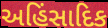
અહિંસાદિક